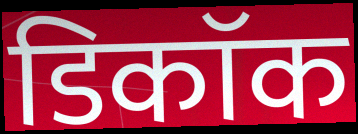
डिकॉक